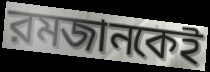
রমজানকেই